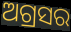
ଅଗ୍ରସର